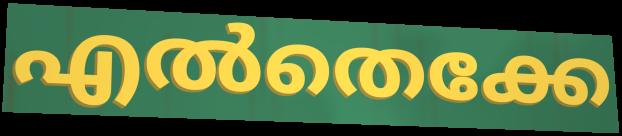
എൽതെക്കേ